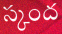
స్కంద